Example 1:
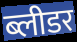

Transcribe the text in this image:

ब्लीडर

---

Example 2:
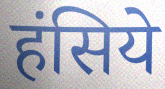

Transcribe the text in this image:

हंसिये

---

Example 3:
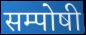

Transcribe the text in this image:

सम्पोषी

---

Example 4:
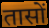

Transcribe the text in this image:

तासों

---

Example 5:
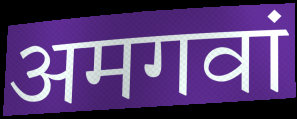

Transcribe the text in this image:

अमगवां